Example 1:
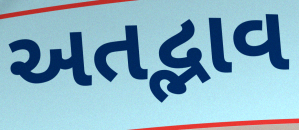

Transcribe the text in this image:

અતદ્ભાવ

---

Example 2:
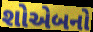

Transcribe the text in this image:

શોએબનો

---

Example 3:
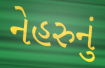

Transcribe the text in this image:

નેહરુનું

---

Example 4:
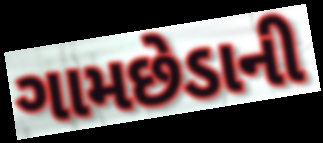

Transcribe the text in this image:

ગામછેડાની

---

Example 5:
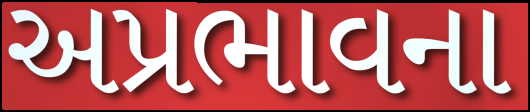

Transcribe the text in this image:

અપ્રભાવના